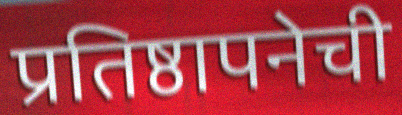
प्रतिष्ठापनेची